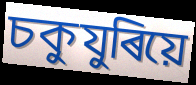
চকুযুৰিয়ে